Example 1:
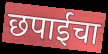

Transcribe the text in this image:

छपाईचा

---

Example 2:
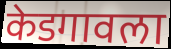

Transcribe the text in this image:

केडगावला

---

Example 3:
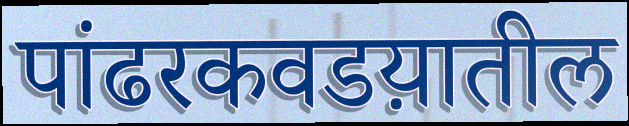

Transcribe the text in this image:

पांढरकवडय़ातील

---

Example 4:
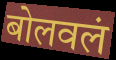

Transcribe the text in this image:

बोलवलं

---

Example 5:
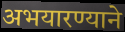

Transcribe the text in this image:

अभयारण्याने